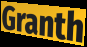
Granth